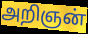
அறிஞன்